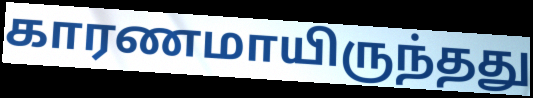
காரணமாயிருந்தது